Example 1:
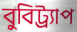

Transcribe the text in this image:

বুবিট্র্যাপ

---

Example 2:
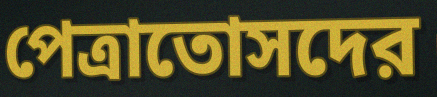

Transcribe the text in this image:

পেত্রাতোসদের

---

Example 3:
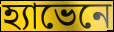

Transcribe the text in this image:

হ্যাভেনে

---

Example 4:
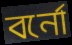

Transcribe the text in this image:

বর্নো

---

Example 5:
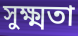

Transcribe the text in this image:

সুক্ষ্মতা